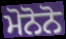
ਮੋਨੋਨੋ